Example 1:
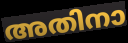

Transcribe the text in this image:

അതിനാ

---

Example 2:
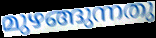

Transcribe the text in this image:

മുഴങ്ങുന്നതു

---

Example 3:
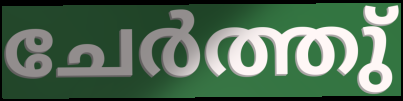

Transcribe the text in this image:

ചേർത്തു്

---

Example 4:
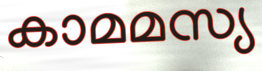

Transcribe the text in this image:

കാമമസ്യ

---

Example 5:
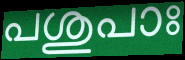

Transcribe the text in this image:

പശുപാഃ